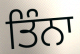
ਤਿੰਨਾ